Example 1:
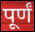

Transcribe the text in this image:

पूर्णं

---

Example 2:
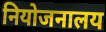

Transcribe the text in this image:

नियोजनालय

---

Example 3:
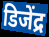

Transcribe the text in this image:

डिजेंद्र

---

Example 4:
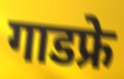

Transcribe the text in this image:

गाडफ्रे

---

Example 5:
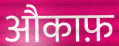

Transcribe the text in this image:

औकाफ़